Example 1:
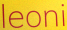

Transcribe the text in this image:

leoni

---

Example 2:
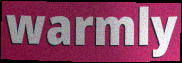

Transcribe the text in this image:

warmly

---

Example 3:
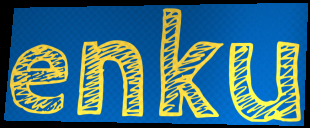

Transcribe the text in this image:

enku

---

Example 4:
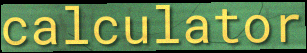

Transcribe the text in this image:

calculator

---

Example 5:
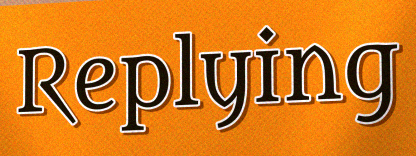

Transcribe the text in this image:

Replying